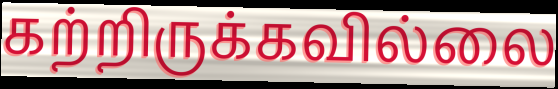
கற்றிருக்கவில்லை